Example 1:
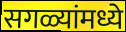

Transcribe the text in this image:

सगळ्यांमध्ये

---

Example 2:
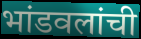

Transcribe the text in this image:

भांडवलांची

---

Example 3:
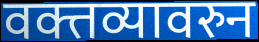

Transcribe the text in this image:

वक्तव्यावरुन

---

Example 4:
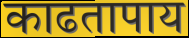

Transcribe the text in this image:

काढतापाय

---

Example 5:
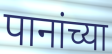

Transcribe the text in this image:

पानांच्या